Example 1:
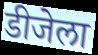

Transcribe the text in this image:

डीजेला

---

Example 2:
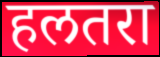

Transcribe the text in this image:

हलतरा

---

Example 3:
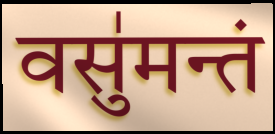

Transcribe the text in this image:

वसु॑मन्तं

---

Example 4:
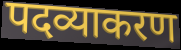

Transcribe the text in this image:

पदव्याकरण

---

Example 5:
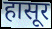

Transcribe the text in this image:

हासूर